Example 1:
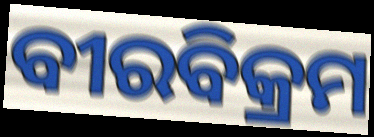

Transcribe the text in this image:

ବୀରବିକ୍ରମ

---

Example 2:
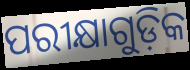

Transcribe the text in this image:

ପରୀକ୍ଷାଗୁଡ଼ିକ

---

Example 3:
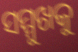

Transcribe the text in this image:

ସମ୍ମୁଖକୁ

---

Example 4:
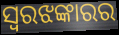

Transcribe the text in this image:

ସ୍ୱରଝଙ୍କାରର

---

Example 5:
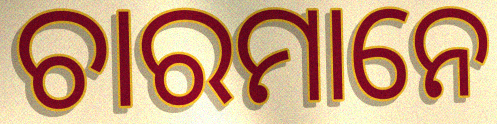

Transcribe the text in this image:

ଚାରମାନେ